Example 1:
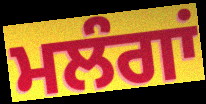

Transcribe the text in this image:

ਮਲੰਗਾਂ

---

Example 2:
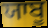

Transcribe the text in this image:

ਯਾਬੂ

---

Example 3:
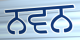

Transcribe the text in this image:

ਨਵਨ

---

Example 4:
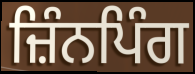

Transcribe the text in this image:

ਜ਼ਿੰਨਪਿੰਗ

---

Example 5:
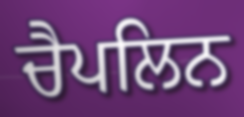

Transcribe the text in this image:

ਚੈਪਲਿਨ